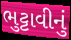
ભુટ્ટાવીનું